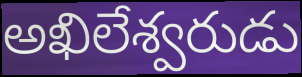
అఖిలేశ్వరుడు